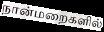
நான்மறைகளில்